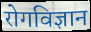
रोगविज्ञान